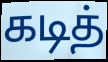
கடித்